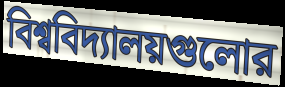
বিশ্ববিদ্যালয়গুলোর